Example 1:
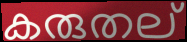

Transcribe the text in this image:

കരുതല്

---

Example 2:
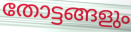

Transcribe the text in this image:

തോട്ടങ്ങളും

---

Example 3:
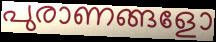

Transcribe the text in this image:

പുരാണങ്ങളോ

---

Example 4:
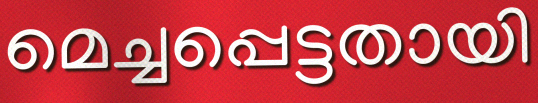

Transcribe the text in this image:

മെച്ചപ്പെട്ടതായി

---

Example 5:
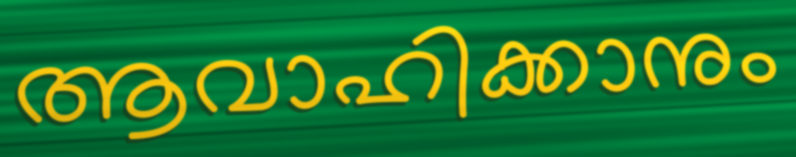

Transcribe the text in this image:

ആവാഹിക്കാനും